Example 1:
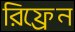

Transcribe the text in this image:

রিফ্রেন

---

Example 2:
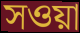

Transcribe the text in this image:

সওয়া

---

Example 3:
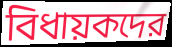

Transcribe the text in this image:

বিধায়কদের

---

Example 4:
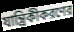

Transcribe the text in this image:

যান্ত্রিকীকরণের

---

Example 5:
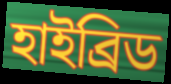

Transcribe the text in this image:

হাইব্রিড